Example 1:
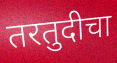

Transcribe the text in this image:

तरतुदीचा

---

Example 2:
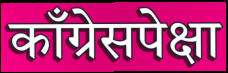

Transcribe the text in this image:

काँग्रेसपेक्षा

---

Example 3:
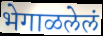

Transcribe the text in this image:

भेगाळलेलं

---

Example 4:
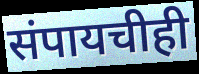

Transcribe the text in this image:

संपायचीही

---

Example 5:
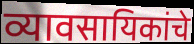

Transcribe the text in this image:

व्यावसायिकांचे